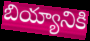
బియ్యానికి